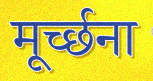
मूर्च्छना